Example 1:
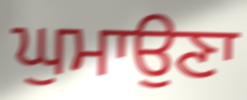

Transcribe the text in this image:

ਘੁਮਾਉਣਾ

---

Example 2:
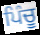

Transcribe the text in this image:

ਪਿੰਚੂ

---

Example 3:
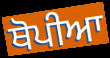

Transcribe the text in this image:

ਥੋਪੀਆ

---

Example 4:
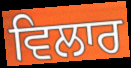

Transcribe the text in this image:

ਵਿਲਾਰ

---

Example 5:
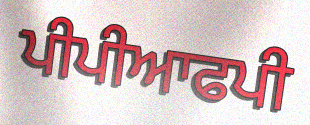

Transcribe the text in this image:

ਪੀਪੀਆਫਪੀ